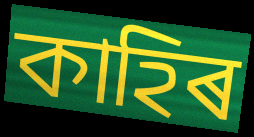
কাহিৰ